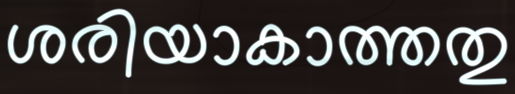
ശരിയാകാത്തതു